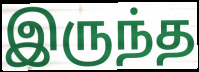
இருந்த